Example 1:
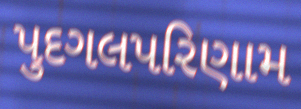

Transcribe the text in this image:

પુદગલપરિણામ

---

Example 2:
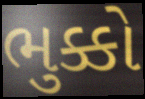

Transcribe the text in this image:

ભુક્કો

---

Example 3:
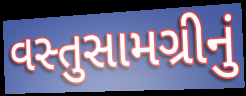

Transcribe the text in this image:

વસ્તુસામગ્રીનું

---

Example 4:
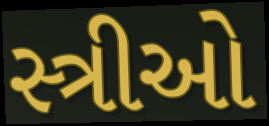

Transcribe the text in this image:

સ્‍ત્રીઓ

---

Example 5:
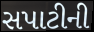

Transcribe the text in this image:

સપાટીની